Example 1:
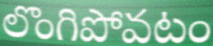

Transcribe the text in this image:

లొంగిపోవటం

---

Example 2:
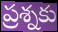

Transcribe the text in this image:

ప్రశ్నకు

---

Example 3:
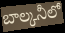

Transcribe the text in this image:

బాల్కనీలో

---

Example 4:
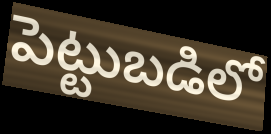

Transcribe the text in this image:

పెట్టుబడిలో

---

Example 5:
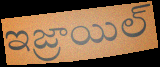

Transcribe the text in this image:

ఇజ్రాయిల్